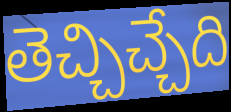
తెచ్చిచ్చేది